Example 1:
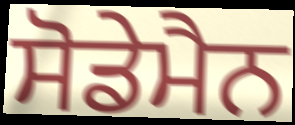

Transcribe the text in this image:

ਸੋਡੇਮੈਨ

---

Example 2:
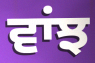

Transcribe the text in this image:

ਵਾਂਝ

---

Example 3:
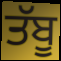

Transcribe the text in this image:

ਤੱਬੂ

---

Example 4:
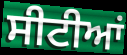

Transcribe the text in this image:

ਸੀਟੀਆਂ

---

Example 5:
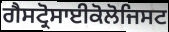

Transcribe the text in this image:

ਗੈਸਟ੍ਰੋਸਾਈਕੋਲੋਜਿਸਟ